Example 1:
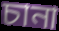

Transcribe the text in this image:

চানা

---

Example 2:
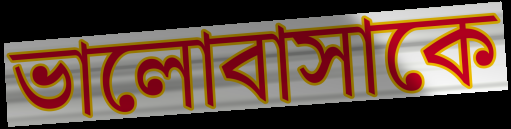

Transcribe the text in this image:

ভালোবাসাকে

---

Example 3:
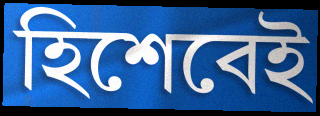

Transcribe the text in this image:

হিশেবেই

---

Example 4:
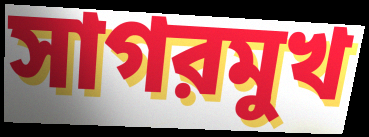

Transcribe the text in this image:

সাগরমুখ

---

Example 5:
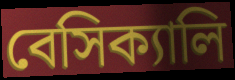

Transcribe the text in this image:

বেসিক্যালি